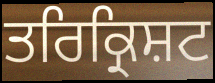
ਤਰਿਕ੍ਰਿਸ਼ਟ